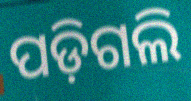
ପଡ଼ିଗଲି